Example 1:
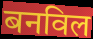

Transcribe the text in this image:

बनविल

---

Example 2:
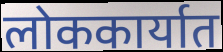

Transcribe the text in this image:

लोककार्यात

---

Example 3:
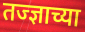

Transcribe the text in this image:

तज्ज्ञाच्या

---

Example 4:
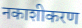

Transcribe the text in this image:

नकाशीकरण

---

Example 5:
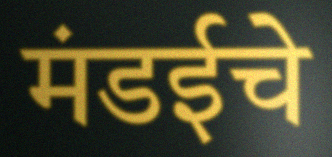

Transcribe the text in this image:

मंडईचे